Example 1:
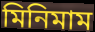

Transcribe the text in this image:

মিনিমাম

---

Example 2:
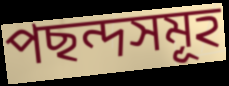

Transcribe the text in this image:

পছন্দসমূহ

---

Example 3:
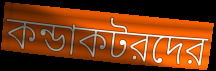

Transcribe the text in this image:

কন্ডাকটরদের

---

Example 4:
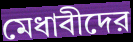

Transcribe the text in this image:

মেধাবীদের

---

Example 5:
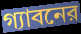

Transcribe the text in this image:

গ্যাবনের